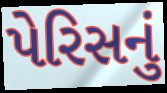
પેરિસનું